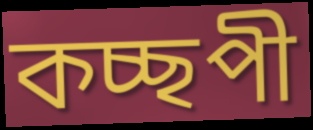
কচ্ছপী